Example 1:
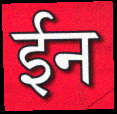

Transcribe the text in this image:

ईन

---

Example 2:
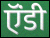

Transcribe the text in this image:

ऍंडी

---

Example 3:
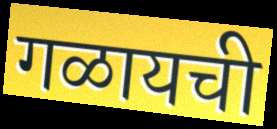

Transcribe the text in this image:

गळायची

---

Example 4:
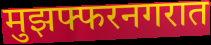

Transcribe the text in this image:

मुझफ्फरनगरात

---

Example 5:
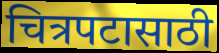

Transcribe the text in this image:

चित्रपटासाठी